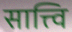
सात्त्वि